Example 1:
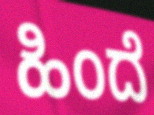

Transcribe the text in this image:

ಹಿಂದೆ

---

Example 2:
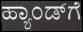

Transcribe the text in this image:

ಹ್ಯಾಂಡ್‌ಗೆ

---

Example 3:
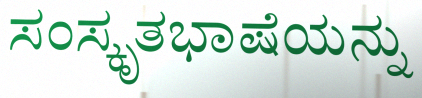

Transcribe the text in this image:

ಸಂಸ್ಕೃತಭಾಷೆಯನ್ನು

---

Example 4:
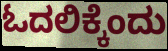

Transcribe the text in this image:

ಓದಲಿಕ್ಕೆಂದು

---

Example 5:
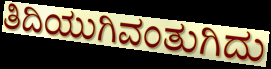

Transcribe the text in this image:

ತಿದಿಯುಗಿವಂತುಗಿದು